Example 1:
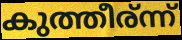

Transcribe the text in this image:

കുത്തീര്ന്ന്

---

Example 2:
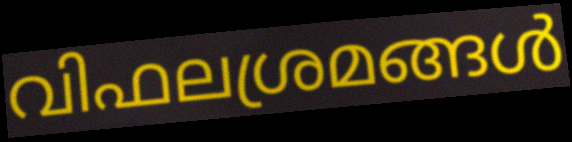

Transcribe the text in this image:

വിഫലശ്രമങ്ങൾ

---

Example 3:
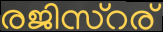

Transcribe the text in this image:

രജിസ്റര്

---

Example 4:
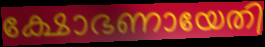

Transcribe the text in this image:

ക്ഷോഭണായേതി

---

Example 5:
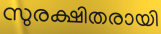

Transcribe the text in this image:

സുരക്ഷിതരായി